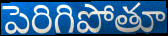
పెరిగిపోతూ